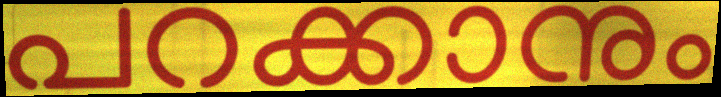
പറക്കാനും